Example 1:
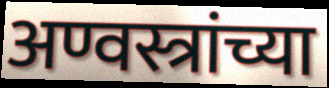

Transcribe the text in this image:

अण्वस्त्रांच्या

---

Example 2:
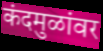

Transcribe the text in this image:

कंदमुळांवर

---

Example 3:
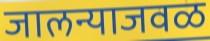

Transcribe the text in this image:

जालन्याजवळ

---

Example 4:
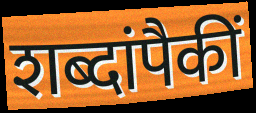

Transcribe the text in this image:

शब्दांपैकीं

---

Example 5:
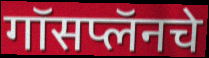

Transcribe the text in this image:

गॉसप्लॅनचे